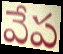
వేప